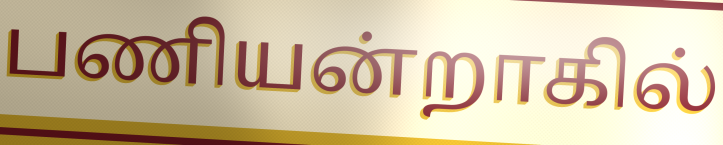
பணியன்றாகில்